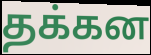
தக்கன